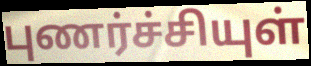
புணர்ச்சியுள்